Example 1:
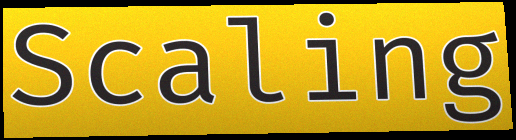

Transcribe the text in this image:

Scaling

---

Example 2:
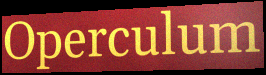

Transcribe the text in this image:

Operculum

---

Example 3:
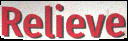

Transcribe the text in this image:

Relieve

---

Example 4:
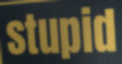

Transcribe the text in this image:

stupid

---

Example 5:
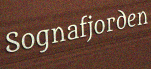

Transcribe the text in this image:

Sognafjorden